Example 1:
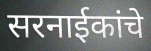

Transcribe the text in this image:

सरनाईकांचे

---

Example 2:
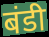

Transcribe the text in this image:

बंडी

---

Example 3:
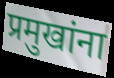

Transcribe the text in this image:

प्रमुखांना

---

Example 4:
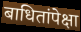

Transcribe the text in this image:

बाधितांपेक्षा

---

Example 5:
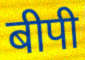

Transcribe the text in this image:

बीपी